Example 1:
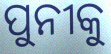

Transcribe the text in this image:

ପୁନୀକୁ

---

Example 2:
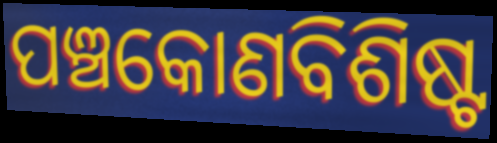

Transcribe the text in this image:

ପଞ୍ଚକୋଣବିଶିଷ୍ଟ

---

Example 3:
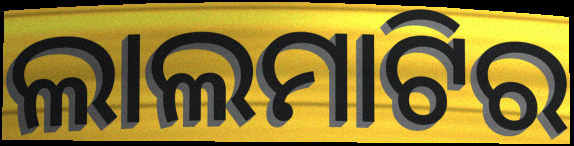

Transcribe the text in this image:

ଲାଲମାଟିର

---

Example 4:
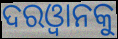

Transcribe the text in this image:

ଦରଓ୍ୱାନକୁ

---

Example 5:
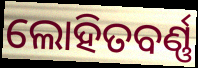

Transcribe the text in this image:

ଲୋହିତବର୍ଣ୍ଣ